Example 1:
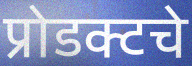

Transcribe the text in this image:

प्रोडक्टचे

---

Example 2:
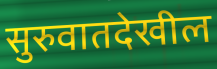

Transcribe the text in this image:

सुरुवातदेखील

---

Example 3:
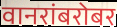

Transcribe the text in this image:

वानरांबरोबर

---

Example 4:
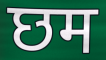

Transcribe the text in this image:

छम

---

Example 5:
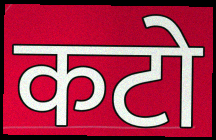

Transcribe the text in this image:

कटो